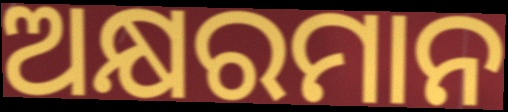
ଅକ୍ଷରମାନ